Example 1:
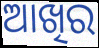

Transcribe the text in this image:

ଆଖିର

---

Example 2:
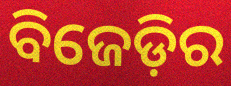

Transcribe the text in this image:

ବିଜେଡ଼ିର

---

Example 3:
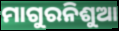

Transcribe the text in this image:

ମାଗୁରନିଶୁଆ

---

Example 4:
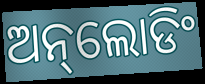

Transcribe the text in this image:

ଅନ୍‌ଲୋଡିଂ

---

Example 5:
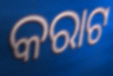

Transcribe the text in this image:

କରାଟ